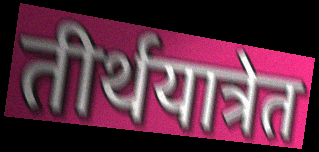
तीर्थयात्रेत